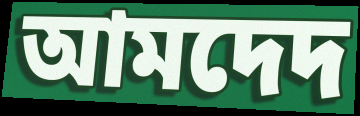
আমদেদ